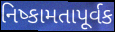
નિષ્કામતાપૂર્વક